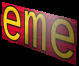
eme